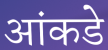
आंकडे